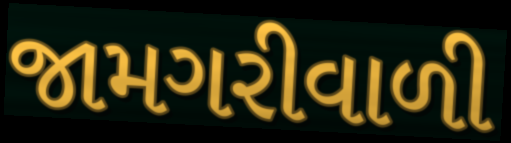
જામગરીવાળી